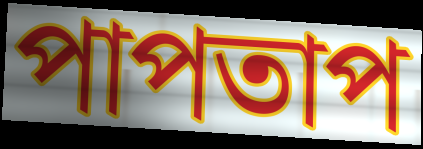
পাপতাপ